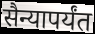
सैन्यापर्यंत